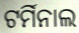
ଟର୍ମିନାଲ